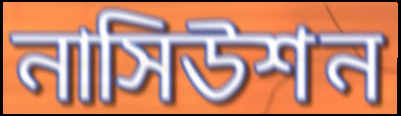
নাসিউশন